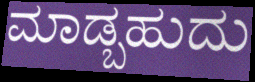
ಮಾಡ್ಬಹುದು